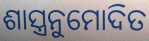
ଶାସ୍ତ୍ରନୁମୋଦିତ